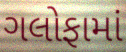
ગલોફામાં